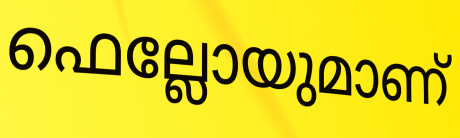
ഫെല്ലോയുമാണ്